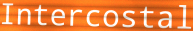
Intercostal